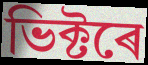
ভিক্টৰে